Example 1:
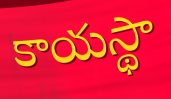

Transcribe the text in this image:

కాయస్థా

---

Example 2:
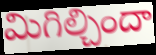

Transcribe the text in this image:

మిగిల్చిందా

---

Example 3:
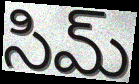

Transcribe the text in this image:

సిమ్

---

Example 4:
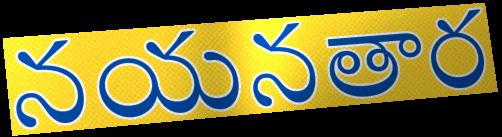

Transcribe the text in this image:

నయనతార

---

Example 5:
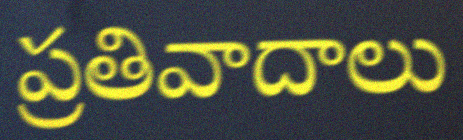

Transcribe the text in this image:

ప్రతివాదాలు